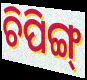
ଚିପିଙ୍ଗ୍